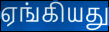
ஏங்கியது